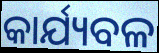
କାର୍ଯ୍ୟବଳ